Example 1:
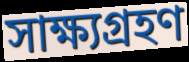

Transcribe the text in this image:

সাক্ষ্যগ্রহণ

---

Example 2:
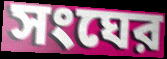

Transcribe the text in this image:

সংঘের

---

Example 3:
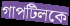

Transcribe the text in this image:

গাপটিলকে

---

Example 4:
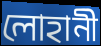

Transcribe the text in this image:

লোহানী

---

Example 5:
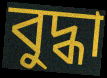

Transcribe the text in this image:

বুদ্ধা